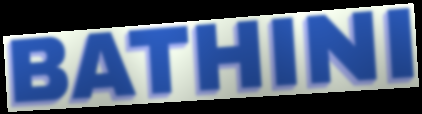
BATHINI